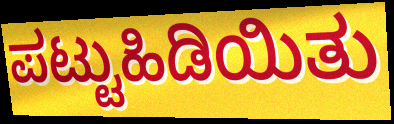
ಪಟ್ಟುಹಿಡಿಯಿತು